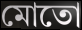
মোতো